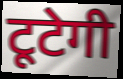
टूटेगी